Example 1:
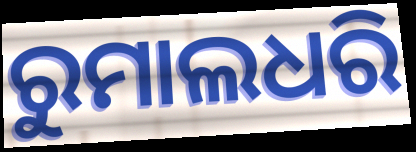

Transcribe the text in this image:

ରୁମାଲଧରି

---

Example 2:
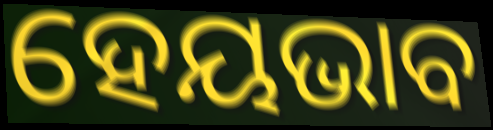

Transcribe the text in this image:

ହେୟଭାବ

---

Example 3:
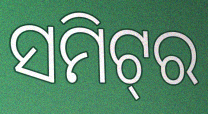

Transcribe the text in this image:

ସମିଟ୍‌ର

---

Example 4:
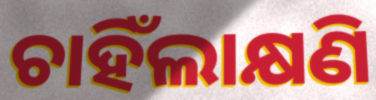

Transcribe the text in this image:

ଚାହିଁଲାକ୍ଷଣି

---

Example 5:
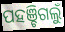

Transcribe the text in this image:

ପହଞ୍ଚିଗଲୁଁ